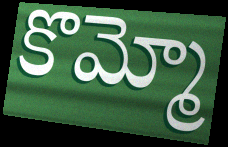
కొమ్మో